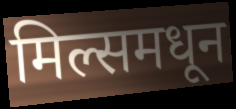
मिल्समधून